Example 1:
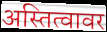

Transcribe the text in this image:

अस्तित्वावर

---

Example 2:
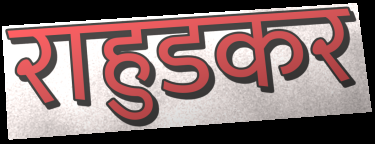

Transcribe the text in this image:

राहुडकर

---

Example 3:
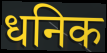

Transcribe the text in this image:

धनिक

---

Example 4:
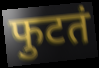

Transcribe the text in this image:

फुटतं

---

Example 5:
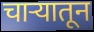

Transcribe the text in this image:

चाऱ्यातून